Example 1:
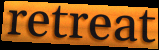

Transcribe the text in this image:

retreat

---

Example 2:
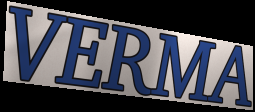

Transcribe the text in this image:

VERMA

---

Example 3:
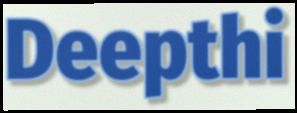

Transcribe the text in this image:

Deepthi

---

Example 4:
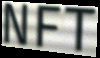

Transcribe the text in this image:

NFT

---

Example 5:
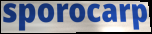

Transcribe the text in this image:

sporocarp